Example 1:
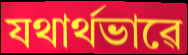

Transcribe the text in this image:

যথাৰ্থভাৱে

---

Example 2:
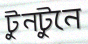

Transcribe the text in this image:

টুনটুনে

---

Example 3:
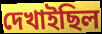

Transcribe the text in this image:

দেখাইছিল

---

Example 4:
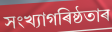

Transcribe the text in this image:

সংখ্যাগৰিষ্ঠতাৰ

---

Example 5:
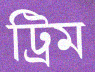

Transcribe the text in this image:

ট্ৰিম